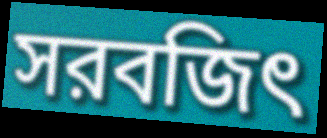
সরবজিৎ